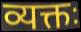
व्यक्तः